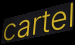
cartel